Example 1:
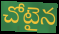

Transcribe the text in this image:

చోటైన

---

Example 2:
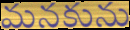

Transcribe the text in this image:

మనకును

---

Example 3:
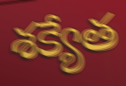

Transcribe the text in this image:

శక్యేత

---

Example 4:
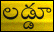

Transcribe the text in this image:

లడ్డూ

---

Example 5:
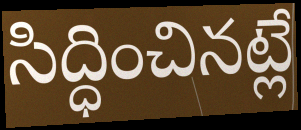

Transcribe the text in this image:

సిద్ధించినట్లే